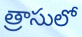
త్రాసులో